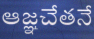
ఆజ్ఞచేతనే